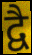
द्वै